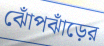
ঝোঁপঝাঁড়ের